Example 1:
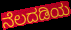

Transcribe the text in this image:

ನೆಲದಡಿಯ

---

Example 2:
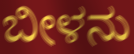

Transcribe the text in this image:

ಬೀಳನು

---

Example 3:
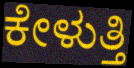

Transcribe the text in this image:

ಕೇಳುತ್ತಿ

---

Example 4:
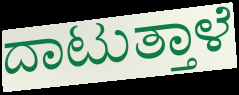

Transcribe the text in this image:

ದಾಟುತ್ತಾಳೆ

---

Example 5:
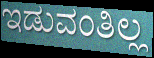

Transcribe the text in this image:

ಇಡುವಂತಿಲ್ಲ